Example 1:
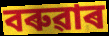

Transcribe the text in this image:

বৰুৱাৰ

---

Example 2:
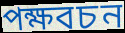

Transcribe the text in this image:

পক্ষবচন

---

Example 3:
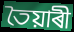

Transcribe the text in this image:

তৈয়াৰী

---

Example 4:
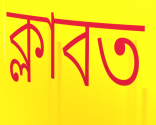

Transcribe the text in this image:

ক্লাবত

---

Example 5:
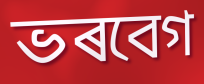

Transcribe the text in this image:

ভৰবেগ